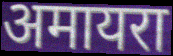
अमायरा